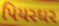
પિયરઘર